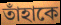
তাঁহাকে